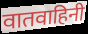
वातवाहिनी